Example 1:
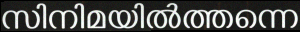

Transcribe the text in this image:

സിനിമയിൽത്തന്നെ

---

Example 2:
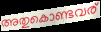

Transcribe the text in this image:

അതുകൊണ്ടവര്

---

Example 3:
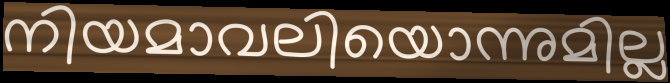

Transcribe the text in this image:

നിയമാവലിയൊന്നുമില്ല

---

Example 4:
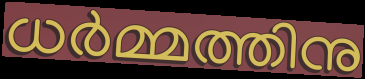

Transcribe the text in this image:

ധർമ്മത്തിനു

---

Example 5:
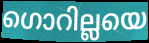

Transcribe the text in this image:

ഗൊറില്ലയെ